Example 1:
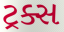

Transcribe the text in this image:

ટ્રક્સ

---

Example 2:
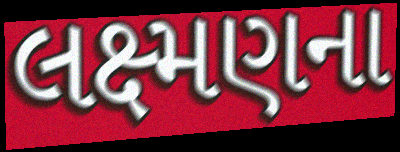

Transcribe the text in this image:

લક્ષ્મણના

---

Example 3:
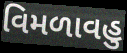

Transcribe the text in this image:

વિમળાવહુ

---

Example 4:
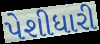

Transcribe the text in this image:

પેશીધારી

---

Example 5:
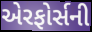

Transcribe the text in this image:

એરફોર્સની